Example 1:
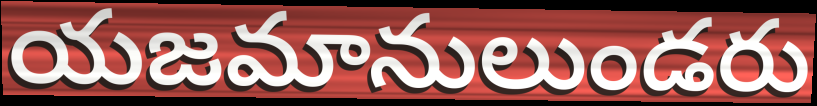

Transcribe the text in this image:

యజమానులుండరు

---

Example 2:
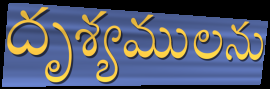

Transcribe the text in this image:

దృశ్యములను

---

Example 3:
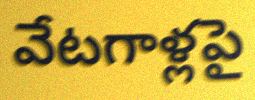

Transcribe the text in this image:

వేటగాళ్లపై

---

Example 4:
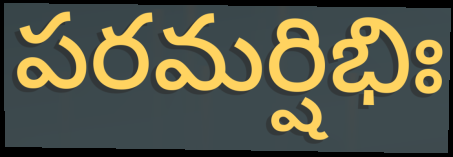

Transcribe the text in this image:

పరమర్షిభిః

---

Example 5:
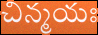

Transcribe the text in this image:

చిన్మయః